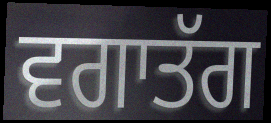
ਵਗਾਤੱਗ